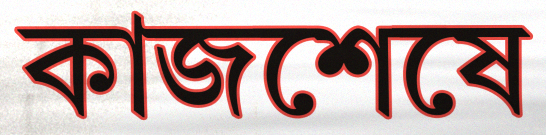
কাজশেষে